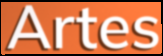
Artes